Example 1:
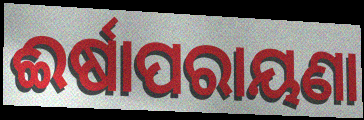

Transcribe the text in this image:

ଈର୍ଷାପରାୟଣା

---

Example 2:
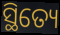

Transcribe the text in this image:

ସ୍ଥିତ୍ୟେ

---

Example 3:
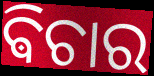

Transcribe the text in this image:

ଵିଚାର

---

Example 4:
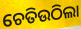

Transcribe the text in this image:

ଚେତିଉଠିଲା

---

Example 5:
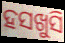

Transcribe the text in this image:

ହସଖୁସି